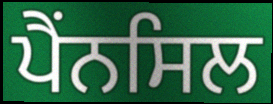
ਪੈਂਨਸਿਲ